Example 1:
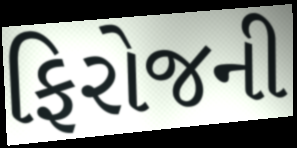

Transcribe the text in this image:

ફિરોજની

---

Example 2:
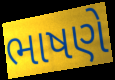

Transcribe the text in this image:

ભાષણે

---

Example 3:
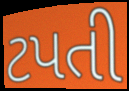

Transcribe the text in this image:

ટપતી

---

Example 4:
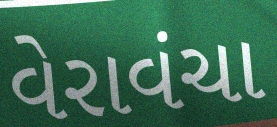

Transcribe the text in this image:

વેરાવંચા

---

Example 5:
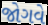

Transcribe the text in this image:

જોગવે